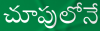
చూపులోనే